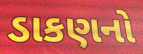
ડાકણનો